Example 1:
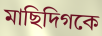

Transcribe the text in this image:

মাছিদিগকে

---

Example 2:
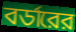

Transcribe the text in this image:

বর্ডারের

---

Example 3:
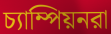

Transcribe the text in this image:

চ্যাম্পিয়নরা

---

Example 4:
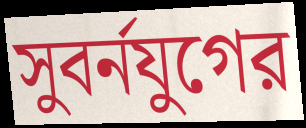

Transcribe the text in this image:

সুবর্নযুগের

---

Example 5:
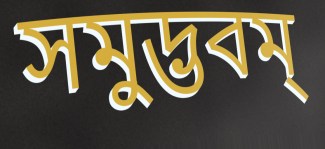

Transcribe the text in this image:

সমুদ্ভবম্